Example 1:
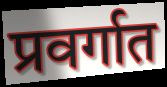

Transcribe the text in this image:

प्रवर्गात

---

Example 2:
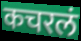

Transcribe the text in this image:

कचरलं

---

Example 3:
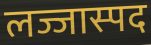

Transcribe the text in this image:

लज्जास्पद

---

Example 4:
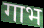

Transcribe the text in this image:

गाभ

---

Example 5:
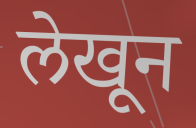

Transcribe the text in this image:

लेखून